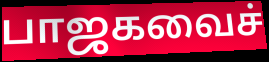
பாஜகவைச்